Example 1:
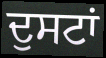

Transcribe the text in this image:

ਦੁਸਟਾਂ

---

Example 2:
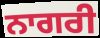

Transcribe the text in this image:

ਨਾਗਰੀ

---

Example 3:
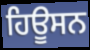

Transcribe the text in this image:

ਹਿਊਸਨ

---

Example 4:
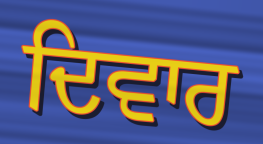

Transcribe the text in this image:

ਦਿਵਾਰ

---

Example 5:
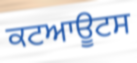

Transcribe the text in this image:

ਕਟਆਊਟਸ